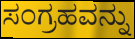
ಸಂಗ್ರಹವನ್ನು